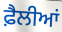
ਫ਼ੈਲੀਆਂ